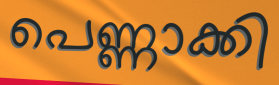
പെണ്ണാക്കി